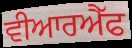
ਵੀਆਰਐੱਫ